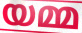
യമ്മ